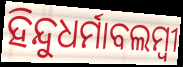
ହିନ୍ଦୁଧର୍ମାବଲମ୍ବୀ